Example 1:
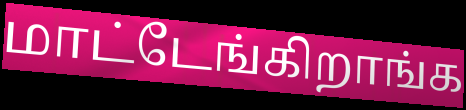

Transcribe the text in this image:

மாட்டேங்கிறாங்க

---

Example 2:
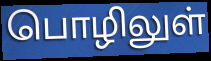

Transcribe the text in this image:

பொழிலுள்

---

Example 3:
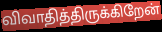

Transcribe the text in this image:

விவாதித்திருக்கிறேன்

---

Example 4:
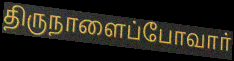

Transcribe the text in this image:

திருநாளைப்போவார்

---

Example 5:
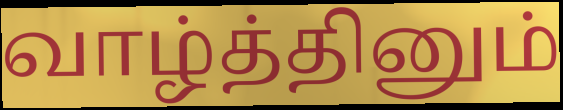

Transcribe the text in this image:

வாழ்த்தினும்